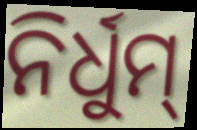
ନିର୍ଧୁମ୍